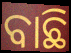
ବାଛି